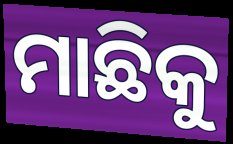
ମାଛିକୁ